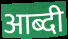
आब्दी